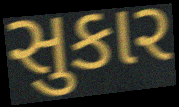
સુકાર